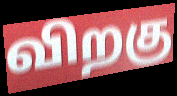
விறகு